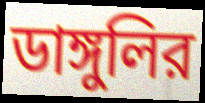
ডাঙ্গুলির